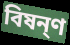
বিষন্ণ